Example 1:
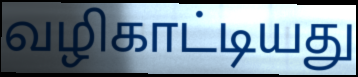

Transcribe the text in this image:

வழிகாட்டியது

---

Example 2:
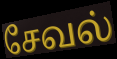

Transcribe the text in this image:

சேவல்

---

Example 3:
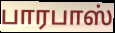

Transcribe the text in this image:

பாரபாஸ்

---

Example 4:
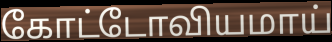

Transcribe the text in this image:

கோட்டோவியமாய்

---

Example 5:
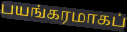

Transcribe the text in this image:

பயங்கரமாகப்